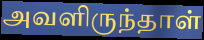
அவளிருந்தாள்